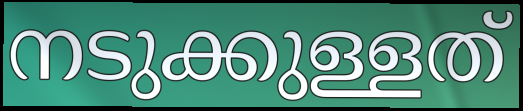
നടുക്കുള്ളത്